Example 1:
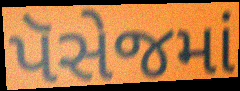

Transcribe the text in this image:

પૅસેજમાં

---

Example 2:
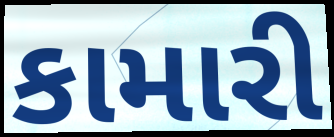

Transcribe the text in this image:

કામારી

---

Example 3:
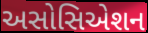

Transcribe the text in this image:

અસોસિએશન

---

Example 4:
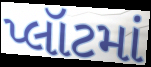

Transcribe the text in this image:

પ્લૉટમાં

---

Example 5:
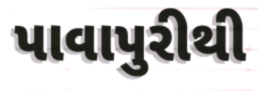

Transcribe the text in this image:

પાવાપુરીથી